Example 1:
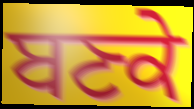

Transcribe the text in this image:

ਬਣਕੇ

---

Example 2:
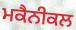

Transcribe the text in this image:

ਮਕੈਨੀਕਲ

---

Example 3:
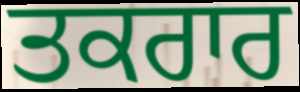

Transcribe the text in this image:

ਤਕਰਾਰ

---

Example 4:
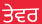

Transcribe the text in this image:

ਤੇਵਰ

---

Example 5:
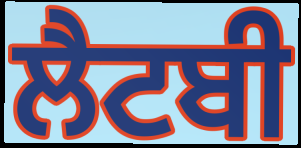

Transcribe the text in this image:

ਲੈਟਬੀ